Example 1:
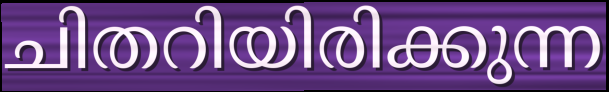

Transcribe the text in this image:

ചിതറിയിരിക്കുന്ന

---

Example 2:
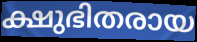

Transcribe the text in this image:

ക്ഷുഭിതരായ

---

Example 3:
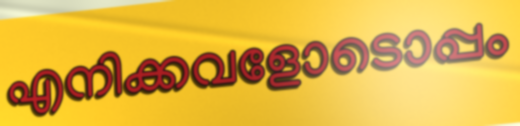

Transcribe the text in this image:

എനിക്കവളോടൊപ്പം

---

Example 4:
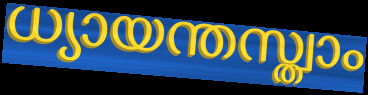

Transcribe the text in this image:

ധ്യായന്തസ്ത്വാം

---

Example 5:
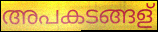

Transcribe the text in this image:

അപകടങ്ങള്